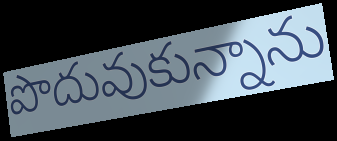
పొదువుకున్నాను